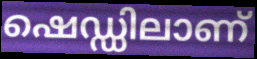
ഷെഡ്ഡിലാണ്